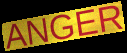
ANGER